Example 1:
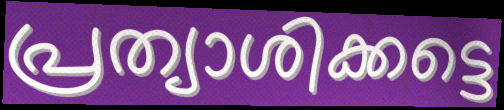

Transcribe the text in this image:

പ്രത്യാശിക്കട്ടെ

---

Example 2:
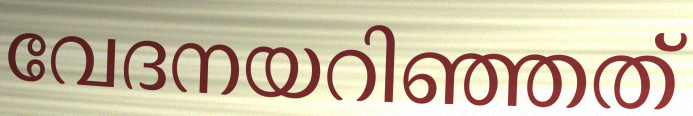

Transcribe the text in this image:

വേദനയറിഞ്ഞത്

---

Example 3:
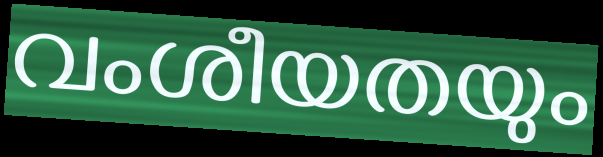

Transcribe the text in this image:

വംശീയതയും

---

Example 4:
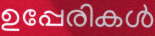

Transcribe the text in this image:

ഉപ്പേരികൾ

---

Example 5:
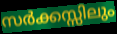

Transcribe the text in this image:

സർക്കസ്സിലും